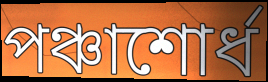
পঞ্চাশোর্ধ